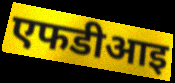
एफडीआइ